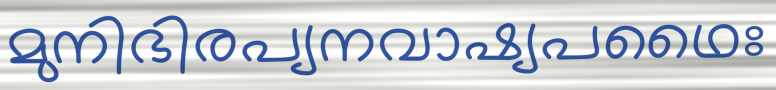
മുനിഭിരപ്യനവാഷ്യപഥൈഃ